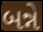
બન્ને